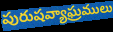
పురుషవ్యాఘ్రములు